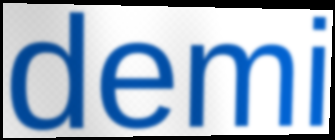
demi